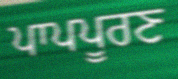
ਪਾਪਪੂਰਣ